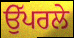
ਉੱਪਰਲੇ